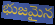
భుజమైన